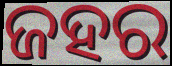
ଜହର